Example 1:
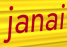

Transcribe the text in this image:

janai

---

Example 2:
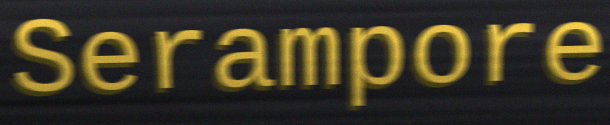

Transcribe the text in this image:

Serampore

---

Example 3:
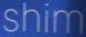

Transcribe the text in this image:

shim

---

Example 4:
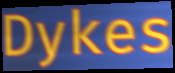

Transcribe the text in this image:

Dykes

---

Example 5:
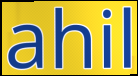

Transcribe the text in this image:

ahil